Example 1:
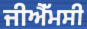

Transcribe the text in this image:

ਜੀਐੱਮਸੀ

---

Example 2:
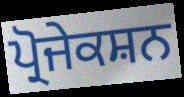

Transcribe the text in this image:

ਪ੍ਰੋਜੇਕਸ਼ਨ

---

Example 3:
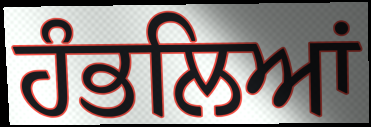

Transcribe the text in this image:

ਹੰਭਲਿਆਂ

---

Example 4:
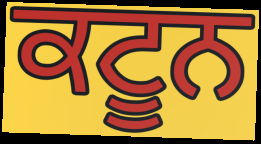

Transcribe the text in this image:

ਕਟੂਨ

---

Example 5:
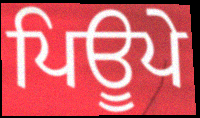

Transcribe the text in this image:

ਪਿਊਪੇ